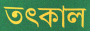
তৎকাল